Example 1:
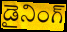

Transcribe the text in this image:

డైనింగ్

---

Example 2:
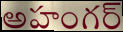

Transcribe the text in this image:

అహంగర్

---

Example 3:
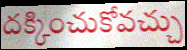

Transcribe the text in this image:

దక్కించుకోవచ్చు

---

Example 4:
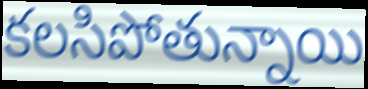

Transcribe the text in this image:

కలసిపోతున్నాయి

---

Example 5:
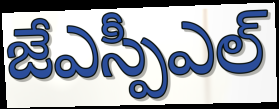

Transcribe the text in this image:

జేఎస్పీఎల్